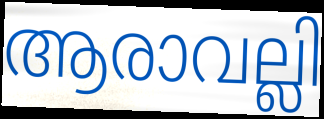
ആരാവല്ലി